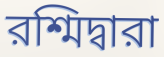
রশ্মিদ্বারা